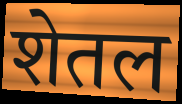
शेतल